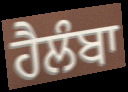
ਹੈਲੰਬਾ